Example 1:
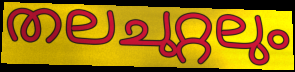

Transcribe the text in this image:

തലചുറ്റലും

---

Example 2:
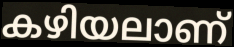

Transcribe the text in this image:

കഴിയലാണ്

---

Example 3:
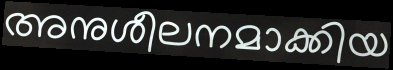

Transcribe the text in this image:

അനുശീലനമാക്കിയ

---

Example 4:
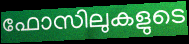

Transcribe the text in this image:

ഫോസിലുകളുടെ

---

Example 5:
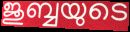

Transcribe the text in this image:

ജുബ്ബയുടെ